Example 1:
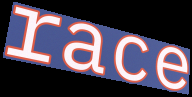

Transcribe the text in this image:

race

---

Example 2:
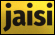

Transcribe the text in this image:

jaisi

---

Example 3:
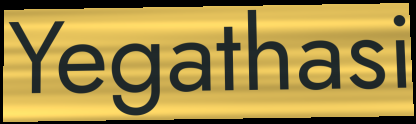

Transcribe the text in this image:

Yegathasi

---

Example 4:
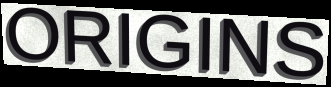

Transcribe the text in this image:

ORIGINS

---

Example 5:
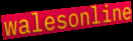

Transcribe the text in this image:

walesonline